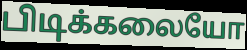
பிடிக்கலையோ